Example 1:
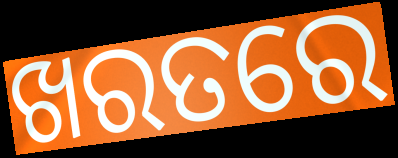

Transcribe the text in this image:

ଖରତରେ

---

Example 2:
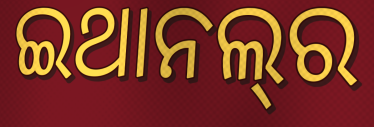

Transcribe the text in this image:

ଇଥାନଲ୍‌ର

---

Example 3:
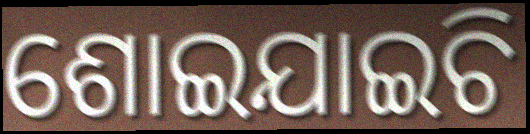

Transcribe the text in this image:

ଶୋଇଯାଇଚି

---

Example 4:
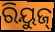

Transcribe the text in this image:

ରିୟୁଜ୍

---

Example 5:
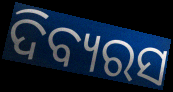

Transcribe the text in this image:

ଦିବ୍ୟରସ